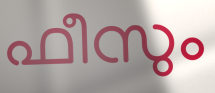
ഫീസും